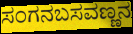
ಸಂಗನಬಸವಣ್ಣನ